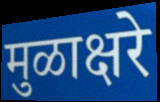
मुळाक्षरे